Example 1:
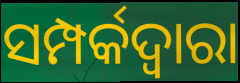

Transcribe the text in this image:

ସମ୍ପର୍କଦ୍ୱାରା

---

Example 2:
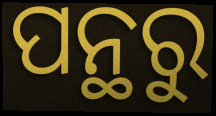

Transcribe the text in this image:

ପନ୍ଥରୁ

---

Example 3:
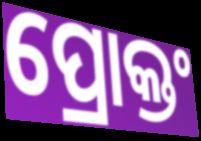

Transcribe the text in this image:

ପ୍ରୋକ୍ତଂ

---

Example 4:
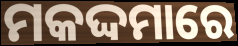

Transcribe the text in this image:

ମକଦ୍ଦମାରେ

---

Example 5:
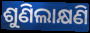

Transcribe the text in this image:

ଶୁଣିଲାକ୍ଷଣି